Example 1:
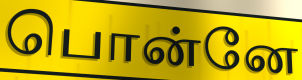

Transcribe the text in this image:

பொன்னே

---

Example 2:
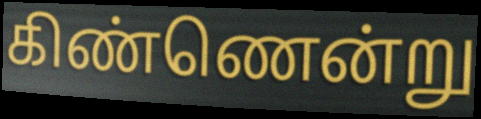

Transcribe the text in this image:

கிண்ணென்று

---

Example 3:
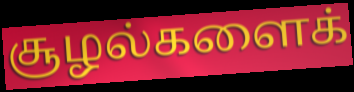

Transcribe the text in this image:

சூழல்களைக்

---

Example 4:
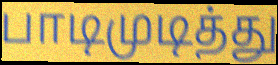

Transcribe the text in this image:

பாடிமுடித்து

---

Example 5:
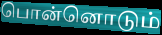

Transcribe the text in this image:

பொன்னொடும்